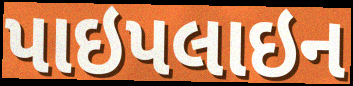
પાઇપલાઇન